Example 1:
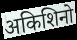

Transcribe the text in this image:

अकिशिनो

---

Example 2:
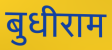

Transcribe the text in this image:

बुधीराम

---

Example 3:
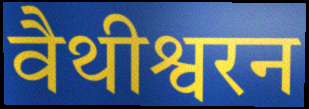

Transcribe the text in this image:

वैथीश्वरन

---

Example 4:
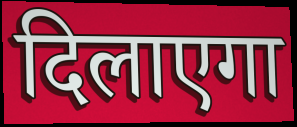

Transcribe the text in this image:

दिलाएगा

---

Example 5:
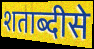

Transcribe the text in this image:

शताब्दीसे